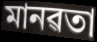
মানৱতা